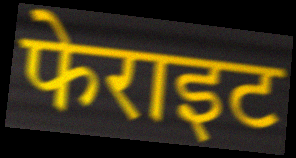
फेराइट